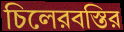
চিলেরবস্তির